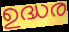
ഉദ്ധര